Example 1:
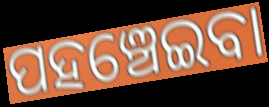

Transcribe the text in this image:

ପହଞ୍ଚେଇବା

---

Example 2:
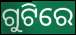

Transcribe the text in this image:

ଗୁଟିରେ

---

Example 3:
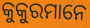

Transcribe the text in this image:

କୁକୁରମାନେ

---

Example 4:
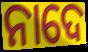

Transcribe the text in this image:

ନାଦେ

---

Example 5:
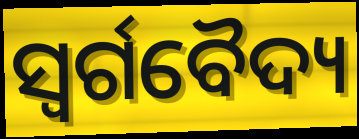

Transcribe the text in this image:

ସ୍ୱର୍ଗବୈଦ୍ୟ